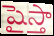
షైస్తా